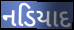
નડિયાદ